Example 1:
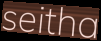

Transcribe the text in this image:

seitha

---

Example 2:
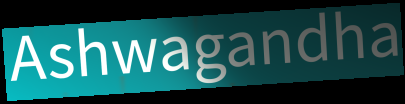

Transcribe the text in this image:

Ashwagandha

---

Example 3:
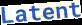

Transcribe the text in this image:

Latent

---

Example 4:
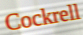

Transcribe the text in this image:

Cockrell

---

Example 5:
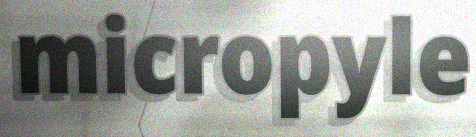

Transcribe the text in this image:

micropyle